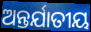
ଅନ୍ତର୍ଯାତୀୟ